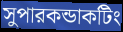
সুপারকন্ডাকটিং